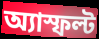
অ্যাস্ফল্ট